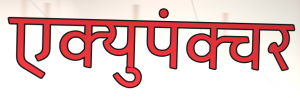
एक्युपंक्चर